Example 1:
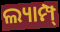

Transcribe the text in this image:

ଲ୍ୟାମ୍ପ୍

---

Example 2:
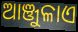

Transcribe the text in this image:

ଆଞ୍ଜୁଳାଏ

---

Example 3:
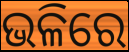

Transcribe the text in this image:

ଭଳିରେ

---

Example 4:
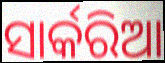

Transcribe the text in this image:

ସାର୍କରିଆ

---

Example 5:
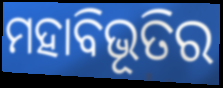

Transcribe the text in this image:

ମହାବିଭୂତିର